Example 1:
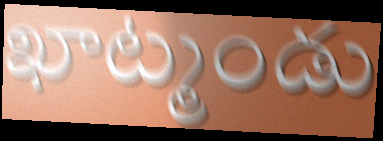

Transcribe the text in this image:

ఖాట్మండు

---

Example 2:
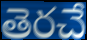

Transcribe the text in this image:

తెరచే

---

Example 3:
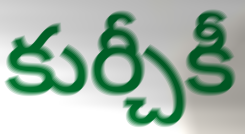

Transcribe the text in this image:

కుర్చీకీ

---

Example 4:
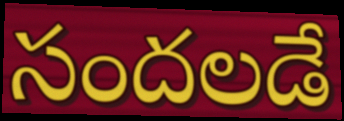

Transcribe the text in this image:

సందలడే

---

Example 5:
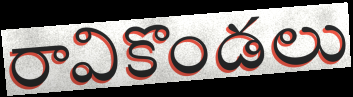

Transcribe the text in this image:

రావికొండలు